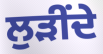
ਲੁੜੀਂਦੇ